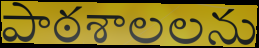
పాఠశాలలను